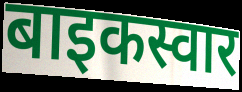
बाइकस्वार